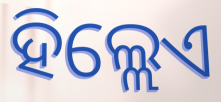
ହିଲ୍ଲେଏ